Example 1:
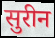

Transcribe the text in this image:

सुरीन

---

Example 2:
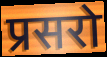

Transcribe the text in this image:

प्रसरो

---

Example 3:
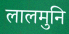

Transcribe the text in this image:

लालमुनि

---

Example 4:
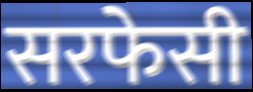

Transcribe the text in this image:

सरफेसी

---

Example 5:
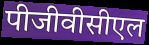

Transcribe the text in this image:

पीजीवीसीएल